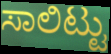
ಸಾಲಿಟ್ಟು